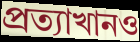
প্রত্যাখানও